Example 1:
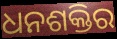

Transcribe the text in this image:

ଧନଶକ୍ତିର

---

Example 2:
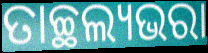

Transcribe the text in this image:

ତାଚ୍ଛଲ୍ୟଭରା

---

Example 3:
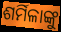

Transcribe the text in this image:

ଶର୍ମିଳାଙ୍କୁ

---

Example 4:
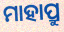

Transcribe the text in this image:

ମାହାପ୍ରୁ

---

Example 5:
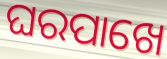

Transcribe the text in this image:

ଘରପାଖେ